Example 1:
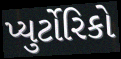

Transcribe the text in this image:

પ્યુર્ટોરિકો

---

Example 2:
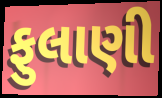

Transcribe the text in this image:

ફુલાણી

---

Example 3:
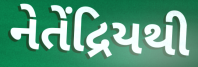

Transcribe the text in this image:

નેતેંદ્રિયથી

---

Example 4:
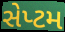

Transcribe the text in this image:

સેપ્ટમ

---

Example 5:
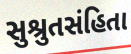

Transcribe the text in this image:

સુશ્રુતસંહિતા